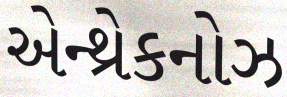
એન્થ્રેકનોઝ